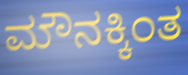
ಮೌನಕ್ಕಿಂತ